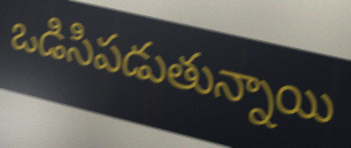
ఒడిసిపడుతున్నాయి